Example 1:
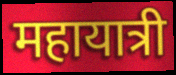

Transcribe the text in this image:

महायात्री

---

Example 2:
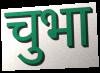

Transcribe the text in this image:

चुभा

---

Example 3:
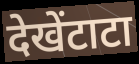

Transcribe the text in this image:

देखेंटाटा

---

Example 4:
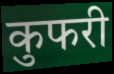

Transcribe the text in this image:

कुफरी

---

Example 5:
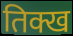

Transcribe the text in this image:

तिक्ख